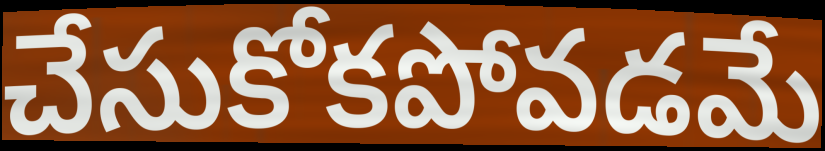
చేసుకోకపోవడమే